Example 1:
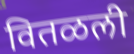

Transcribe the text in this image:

वितळली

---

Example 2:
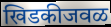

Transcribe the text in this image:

खिडकीजवळ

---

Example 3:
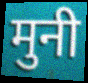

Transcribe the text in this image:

मुनी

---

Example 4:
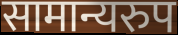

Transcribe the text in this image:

सामान्यरुप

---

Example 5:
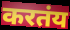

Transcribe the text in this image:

करतंय